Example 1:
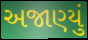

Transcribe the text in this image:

અજાણ્યું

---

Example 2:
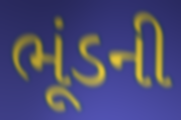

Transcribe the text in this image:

ભૂંડની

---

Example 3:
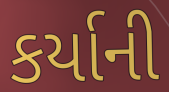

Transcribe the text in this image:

કર્યાની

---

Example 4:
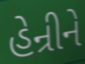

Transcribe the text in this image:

હેન્રીને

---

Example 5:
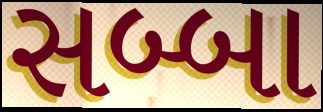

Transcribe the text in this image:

સબ્બા